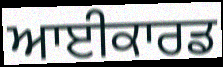
ਆਈਕਾਰਡ